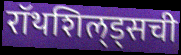
रॉथशिल्ड्सची